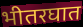
भीतरघात